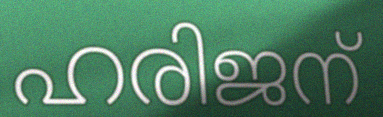
ഹരിജന്